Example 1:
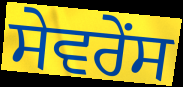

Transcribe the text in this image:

ਸੇਵਰੇਂਸ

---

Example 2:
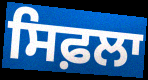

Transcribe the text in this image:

ਸਿਫ਼ਲਾ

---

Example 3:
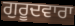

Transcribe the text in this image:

ਗੁਰੂਦਵਾਰਾ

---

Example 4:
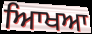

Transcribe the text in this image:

ਆਿਖਆ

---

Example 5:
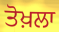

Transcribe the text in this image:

ਤੋਖ਼ਲਾ